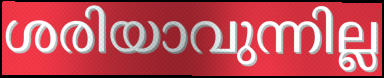
ശരിയാവുന്നില്ല